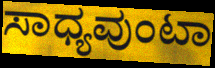
ಸಾಧ್ಯವುಂಟಾ